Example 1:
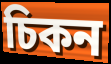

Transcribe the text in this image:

চিকন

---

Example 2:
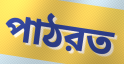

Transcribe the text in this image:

পাঠরত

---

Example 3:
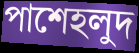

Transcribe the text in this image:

পাশেহলুদ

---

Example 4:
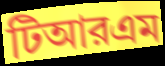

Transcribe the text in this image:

টিআরএম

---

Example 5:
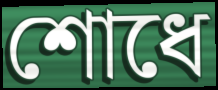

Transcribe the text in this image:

শোধে